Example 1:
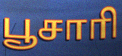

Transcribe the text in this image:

பூசாரி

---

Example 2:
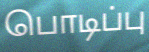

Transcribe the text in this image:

பொடிப்பு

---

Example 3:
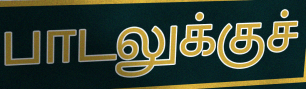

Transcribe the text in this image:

பாடலுக்குச்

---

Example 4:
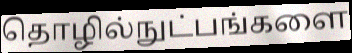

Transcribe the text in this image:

தொழில்நுட்பங்களை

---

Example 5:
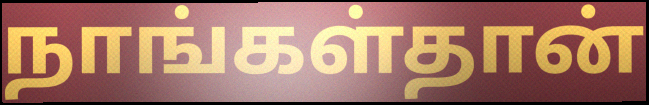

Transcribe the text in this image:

நாங்கள்தான்